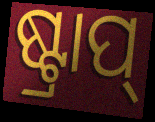
ଷ୍ଟ୍ରାପ୍